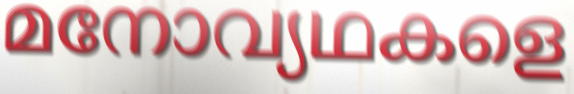
മനോവ്യഥകളെ